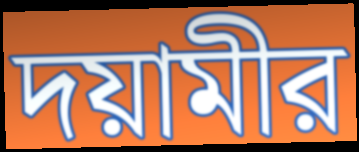
দয়ামীর